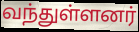
வந்துள்ளனர்